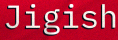
Jigish